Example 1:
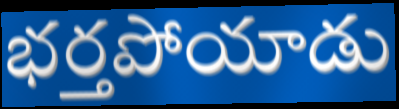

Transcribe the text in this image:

భర్తపోయాడు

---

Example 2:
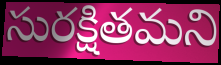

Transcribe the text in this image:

సురక్షితమని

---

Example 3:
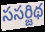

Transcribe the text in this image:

ససర్జిథ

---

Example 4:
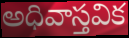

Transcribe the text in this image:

అధివాస్తవిక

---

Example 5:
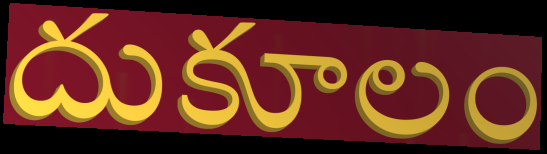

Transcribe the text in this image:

దుకూలం